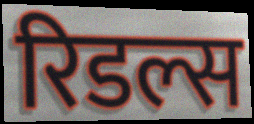
रिडल्स